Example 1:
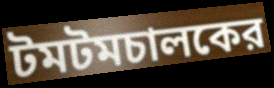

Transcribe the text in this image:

টমটমচালকের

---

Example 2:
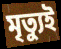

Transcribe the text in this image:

মৃত্যুই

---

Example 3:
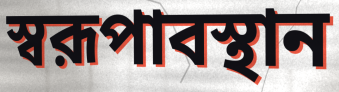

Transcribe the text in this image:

স্বরূপাবস্থান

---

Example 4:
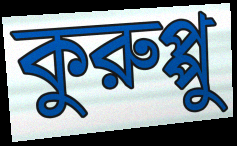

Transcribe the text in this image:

কুরুপ্পু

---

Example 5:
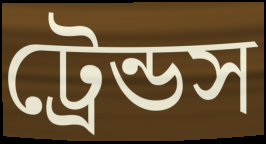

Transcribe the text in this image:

ট্রেন্ডস